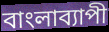
বাংলাব্যাপী